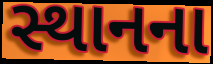
સ્થાનના